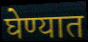
घेण्यात